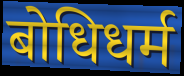
बोधिधर्म